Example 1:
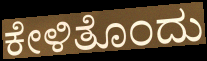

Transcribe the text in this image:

ಕೇಳಿತೊಂದು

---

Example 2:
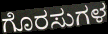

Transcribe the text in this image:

ಗೊರಸುಗಳ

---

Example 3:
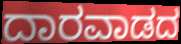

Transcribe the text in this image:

ದಾರವಾಡದ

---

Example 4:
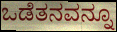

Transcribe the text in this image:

ಒಡೆತನವನ್ನೂ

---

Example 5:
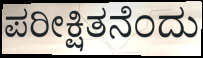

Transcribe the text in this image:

ಪರೀಕ್ಷಿತನೆಂದು